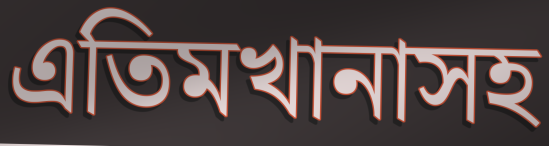
এতিমখানাসহ